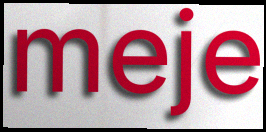
meje